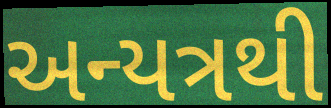
અન્યત્રથી